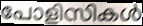
പോളിസികൾ